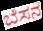
ಬೆಸನ